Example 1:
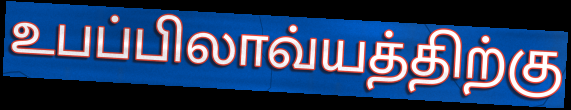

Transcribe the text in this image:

உபப்பிலாவ்யத்திற்கு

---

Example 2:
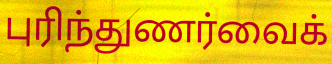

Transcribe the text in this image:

புரிந்துணர்வைக்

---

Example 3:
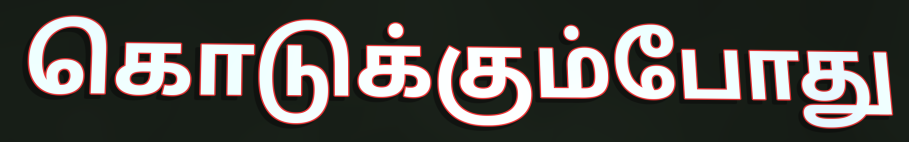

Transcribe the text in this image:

கொடுக்கும்போது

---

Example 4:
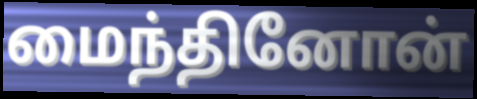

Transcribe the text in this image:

மைந்தினோன்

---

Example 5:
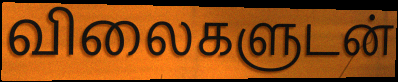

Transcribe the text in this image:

விலைகளுடன்